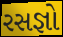
રસજ્ઞો